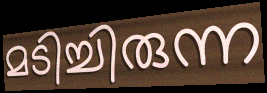
മടിച്ചിരുന്ന